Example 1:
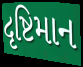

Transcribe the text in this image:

દૃષ્ટિમાન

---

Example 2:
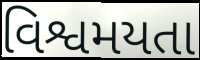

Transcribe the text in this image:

વિશ્વમયતા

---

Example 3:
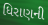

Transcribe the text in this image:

ધિરાણની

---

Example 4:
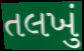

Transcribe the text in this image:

તલખું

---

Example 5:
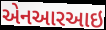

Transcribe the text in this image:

એનઆરઆઇ